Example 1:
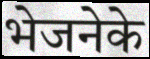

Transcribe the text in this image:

भेजनेके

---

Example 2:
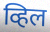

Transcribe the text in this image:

व्हिल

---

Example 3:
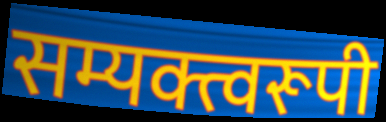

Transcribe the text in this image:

सम्यक्त्वरूपी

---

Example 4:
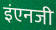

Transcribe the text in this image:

इंएनजी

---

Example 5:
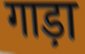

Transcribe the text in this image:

गाड़ा